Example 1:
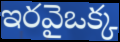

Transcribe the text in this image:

ఇరవైఒక్క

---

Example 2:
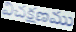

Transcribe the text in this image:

విచక్షణము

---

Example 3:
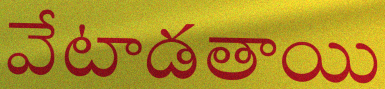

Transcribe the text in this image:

వేటాడతాయి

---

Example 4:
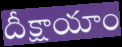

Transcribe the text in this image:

దీక్షాయాం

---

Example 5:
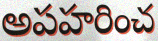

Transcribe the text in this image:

అపహరించ